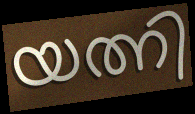
യത്നി